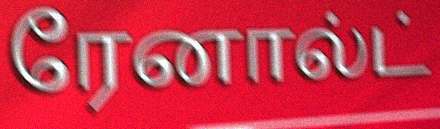
ரேனால்ட்